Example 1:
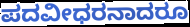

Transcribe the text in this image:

ಪದವೀಧರನಾದರೂ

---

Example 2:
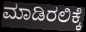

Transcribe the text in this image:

ಮಾಡಿರಲಿಕ್ಕೆ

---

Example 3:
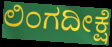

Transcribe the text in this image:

ಲಿಂಗದೀಕ್ಷೆ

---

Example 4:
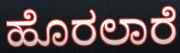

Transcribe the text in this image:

ಹೊರಲಾರೆ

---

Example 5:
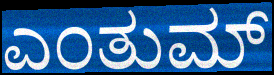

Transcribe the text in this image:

ಎಂತುಮ್